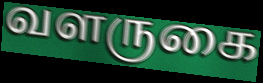
வளருகை